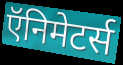
ऍनिमेटर्स